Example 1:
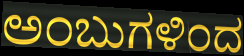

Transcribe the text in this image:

ಅಂಬುಗಳಿಂದ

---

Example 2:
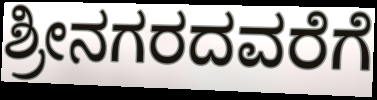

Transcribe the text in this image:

ಶ್ರೀನಗರದವರೆಗೆ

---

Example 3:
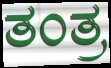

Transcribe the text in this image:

ತಂತ್ರ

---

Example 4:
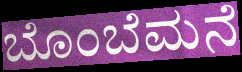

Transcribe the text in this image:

ಬೊಂಬೆಮನೆ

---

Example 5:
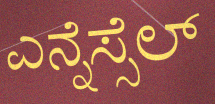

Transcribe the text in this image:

ಎನ್ನೆಸ್ಸೆಲ್